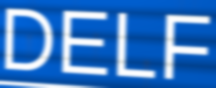
DELF